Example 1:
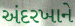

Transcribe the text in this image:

અંદરખાને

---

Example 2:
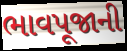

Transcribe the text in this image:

ભાવપૂજાની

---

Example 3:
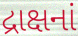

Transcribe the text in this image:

દ્રાક્ષનાં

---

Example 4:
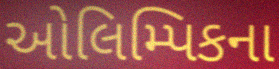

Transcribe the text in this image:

ઓલિમ્પિકના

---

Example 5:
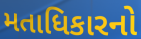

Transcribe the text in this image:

મતાધિકારનો